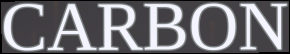
CARBON